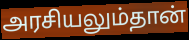
அரசியலும்தான்